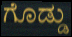
ಗೊಡ್ಡು